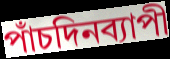
পাঁচদিনব্যাপী